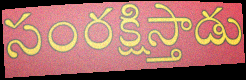
సంరక్షిస్తాడు